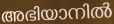
അഭിയാനിൽ